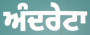
ਅੰਦਰੇਟਾ